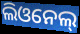
ଲିଓନେଲ୍